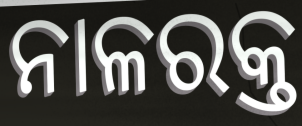
ନାଳରକ୍ତ